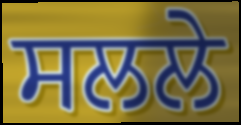
ਸਲਲੇ